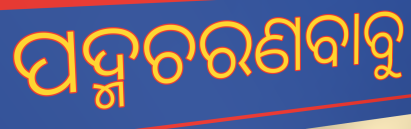
ପଦ୍ମଚରଣବାବୁ